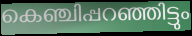
കെഞ്ചിപ്പറഞ്ഞിട്ടും